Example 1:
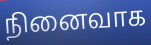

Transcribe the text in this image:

நினைவாக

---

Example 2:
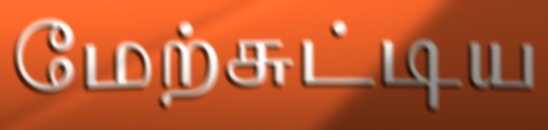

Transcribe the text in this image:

மேற்சுட்டிய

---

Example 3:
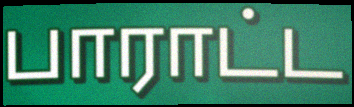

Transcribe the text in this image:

பாராட்ட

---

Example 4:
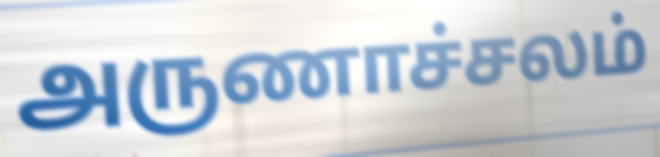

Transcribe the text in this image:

அருணாச்சலம்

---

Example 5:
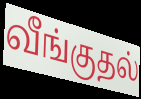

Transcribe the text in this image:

வீங்குதல்